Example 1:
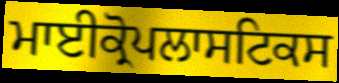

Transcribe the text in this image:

ਮਾਈਕ੍ਰੋਪਲਾਸਟਿਕਸ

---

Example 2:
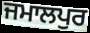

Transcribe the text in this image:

ਜਮਾਲਪੁਰ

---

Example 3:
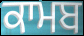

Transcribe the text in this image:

ਕਾਮਬ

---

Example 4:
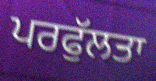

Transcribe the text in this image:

ਪਰਫੁੱਲਤਾ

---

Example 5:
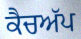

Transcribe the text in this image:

ਕੈਚਅੱਪ